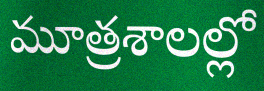
మూత్రశాలల్లో